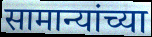
सामान्यांच्या